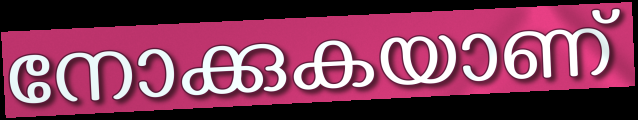
നോക്കുകയാണ്